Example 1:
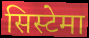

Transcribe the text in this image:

सिस्टेमा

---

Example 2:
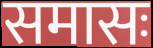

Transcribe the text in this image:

समासः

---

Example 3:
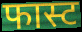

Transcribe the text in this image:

फास्ट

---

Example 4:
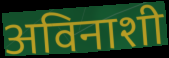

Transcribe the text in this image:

अविनाशी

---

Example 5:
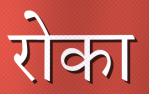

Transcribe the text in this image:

रोका